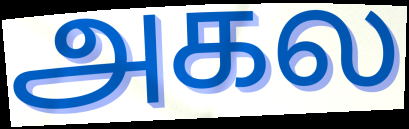
அகல